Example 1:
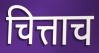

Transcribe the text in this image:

चित्ताच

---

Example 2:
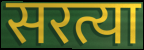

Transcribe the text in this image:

सरत्या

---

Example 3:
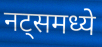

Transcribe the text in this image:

नट्समध्ये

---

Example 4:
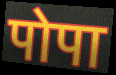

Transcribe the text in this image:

पोपा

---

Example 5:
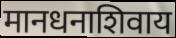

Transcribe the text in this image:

मानधनाशिवाय